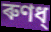
ৰুণধ্